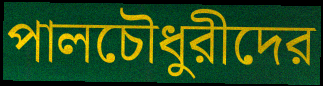
পালচৌধুরীদের